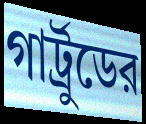
গার্ট্রুডের